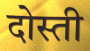
दोस्ती